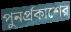
পুনর্প্রকাশের